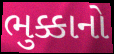
ભુક્કાનો